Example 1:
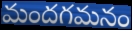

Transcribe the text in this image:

మందగమనం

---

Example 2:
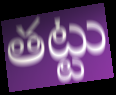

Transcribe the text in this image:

తట్టు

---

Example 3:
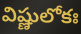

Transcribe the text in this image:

విష్ణులోకః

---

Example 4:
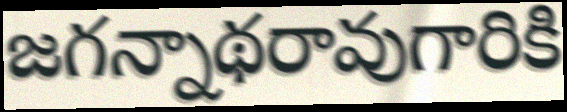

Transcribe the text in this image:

జగన్నాథరావుగారికి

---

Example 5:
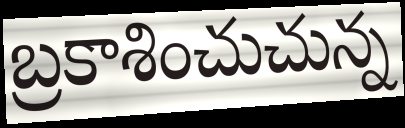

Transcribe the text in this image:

బ్రకాశించుచున్న